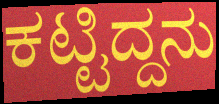
ಕಟ್ಟಿದ್ದನು